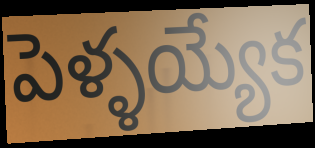
పెళ్ళయ్యేక